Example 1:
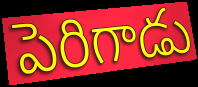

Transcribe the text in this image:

పెరిగాడు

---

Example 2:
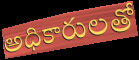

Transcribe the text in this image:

అధికారులతో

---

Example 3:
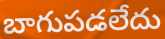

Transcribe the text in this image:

బాగుపడలేదు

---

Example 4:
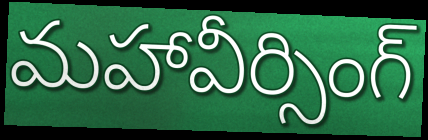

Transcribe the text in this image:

మహావీర్సింగ్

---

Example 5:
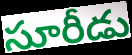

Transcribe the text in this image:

సూరీడు